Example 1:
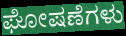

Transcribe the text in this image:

ಘೋಷಣೆಗಳು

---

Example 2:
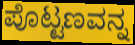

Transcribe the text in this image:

ಪೊಟ್ಟಣವನ್ನ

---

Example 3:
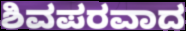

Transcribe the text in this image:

ಶಿವಪರವಾದ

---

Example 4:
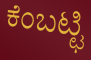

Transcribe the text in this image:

ಕೆಂಬಟ್ಟಿ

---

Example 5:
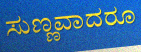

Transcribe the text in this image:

ಸುಣ್ಣವಾದರೂ